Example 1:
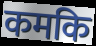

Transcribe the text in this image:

कमकि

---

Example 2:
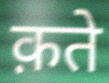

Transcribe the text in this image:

क़ते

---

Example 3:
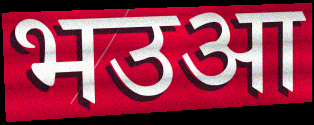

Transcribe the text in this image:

भउआ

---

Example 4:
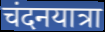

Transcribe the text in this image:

चंदनयात्रा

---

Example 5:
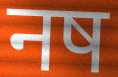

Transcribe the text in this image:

नष